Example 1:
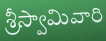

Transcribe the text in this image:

శ్రీస్వామివారి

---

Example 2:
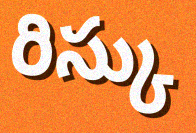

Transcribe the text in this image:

రిస్కు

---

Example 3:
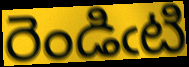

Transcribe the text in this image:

రెండిఁటి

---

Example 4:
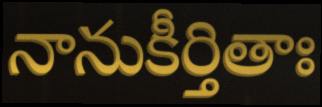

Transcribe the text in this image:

నానుకీర్తితాః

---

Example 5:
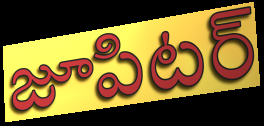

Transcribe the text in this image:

జూపిటర్